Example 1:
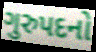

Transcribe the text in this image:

ગુરુપદનો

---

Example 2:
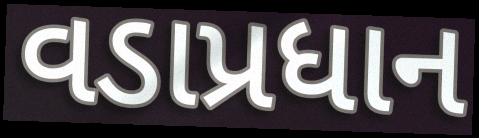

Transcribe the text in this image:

વડાપ્રધાન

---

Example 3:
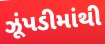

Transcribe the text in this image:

ઝૂંપડીમાંથી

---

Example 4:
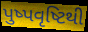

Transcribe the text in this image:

પુષ્પવૃષ્ટિથી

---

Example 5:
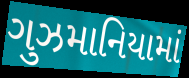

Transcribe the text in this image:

ગુઝમાનિયામાં